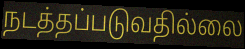
நடத்தப்படுவதில்லை